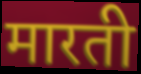
मारती